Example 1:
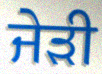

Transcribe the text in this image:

ਜੇੜੀ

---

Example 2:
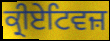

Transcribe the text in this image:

ਕ੍ਰੀਏਟਿਵਜ਼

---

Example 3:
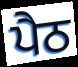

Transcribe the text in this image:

ਪੈਠ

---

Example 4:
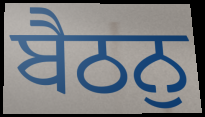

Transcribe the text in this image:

ਬੈਠਨੁ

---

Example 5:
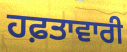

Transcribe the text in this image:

ਹਫ਼ਤਾਵਾਰੀ